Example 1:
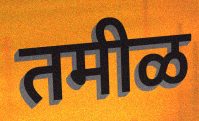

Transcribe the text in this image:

तमीळ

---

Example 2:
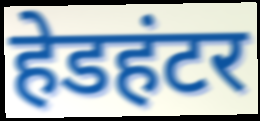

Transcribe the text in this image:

हेडहंटर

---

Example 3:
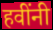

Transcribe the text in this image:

हवींनी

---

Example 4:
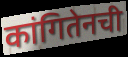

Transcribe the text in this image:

कांगितेनची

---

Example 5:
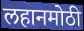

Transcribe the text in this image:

लहानमोठी